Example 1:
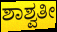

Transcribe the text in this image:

ಶಾಶ್ವತೀ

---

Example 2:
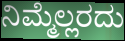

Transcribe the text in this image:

ನಿಮ್ಮೆಲ್ಲರದು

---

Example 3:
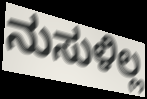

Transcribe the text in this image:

ನುಸುಳಿಲ್ಲ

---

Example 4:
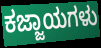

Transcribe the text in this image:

ಕಜ್ಜಾಯಗಳು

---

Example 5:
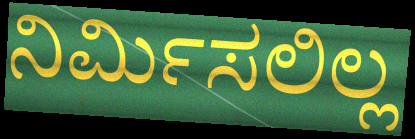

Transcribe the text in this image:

ನಿರ್ಮಿಸಲಿಲ್ಲ